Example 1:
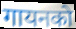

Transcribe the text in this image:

गायनको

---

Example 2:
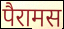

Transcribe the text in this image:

पैरामस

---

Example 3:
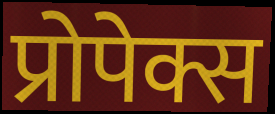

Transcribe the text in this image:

प्रोपेक्स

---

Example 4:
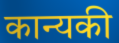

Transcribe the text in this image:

कान्यकी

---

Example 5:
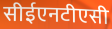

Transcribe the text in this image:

सीईएनटीएसी